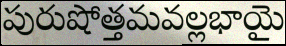
పురుషోత్తమవల్లభాయై